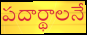
పదార్థాలనే